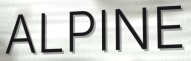
ALPINE